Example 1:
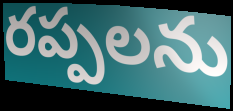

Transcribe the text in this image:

రప్పలను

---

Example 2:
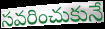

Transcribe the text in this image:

సవరించుకునే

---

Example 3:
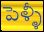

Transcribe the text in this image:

పెళ్ళీ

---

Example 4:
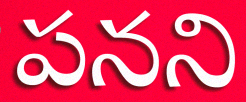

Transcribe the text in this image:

పనని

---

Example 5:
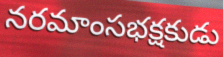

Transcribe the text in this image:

నరమాంసభక్షకుడు